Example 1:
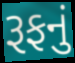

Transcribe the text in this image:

રૂફનું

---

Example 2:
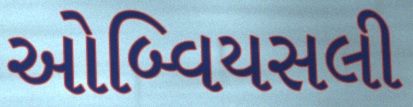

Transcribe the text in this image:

ઓબ્વિયસલી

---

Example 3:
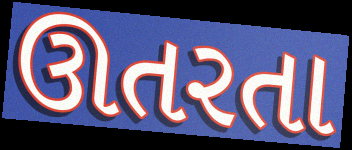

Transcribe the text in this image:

ઊતરતા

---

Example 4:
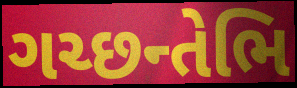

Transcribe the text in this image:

ગચ્છન્તેભિ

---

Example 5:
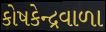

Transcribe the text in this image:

કોષકેન્દ્રવાળા